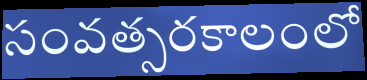
సంవత్సరకాలంలో